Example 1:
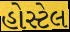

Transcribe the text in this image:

હોસ્ટેલ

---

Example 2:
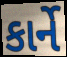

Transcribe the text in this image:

કાર્ને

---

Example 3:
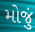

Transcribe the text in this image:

મોજું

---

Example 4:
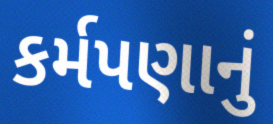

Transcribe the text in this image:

કર્મપણાનું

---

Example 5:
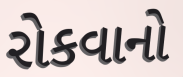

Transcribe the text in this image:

રોકવાનો